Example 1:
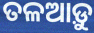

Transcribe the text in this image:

ତଳଆଡ଼ୁ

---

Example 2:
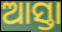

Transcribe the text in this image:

ଆସ୍ତା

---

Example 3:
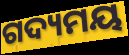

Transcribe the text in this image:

ଗଦ୍ୟମୟ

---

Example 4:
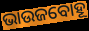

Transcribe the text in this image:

ଭାଉଜବୋହୂ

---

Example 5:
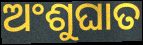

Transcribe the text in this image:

ଅଂଶୁଘାତ